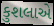
કુશલાએ